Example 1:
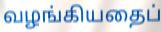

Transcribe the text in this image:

வழங்கியதைப்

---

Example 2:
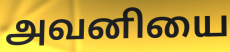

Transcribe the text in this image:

அவனியை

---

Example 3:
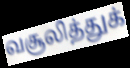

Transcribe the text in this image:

வசூலித்துக்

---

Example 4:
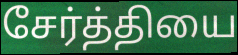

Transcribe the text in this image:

சேர்த்தியை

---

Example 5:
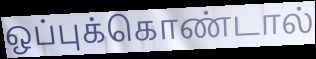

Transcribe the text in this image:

ஒப்புக்கொண்டால்